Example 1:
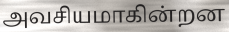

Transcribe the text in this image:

அவசியமாகின்றன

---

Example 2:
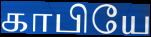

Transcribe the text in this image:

காபியே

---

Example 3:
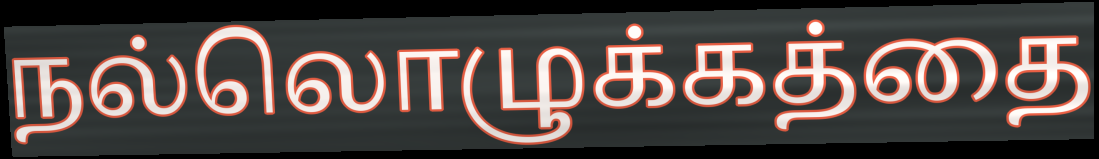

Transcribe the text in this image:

நல்லொழுக்கத்தை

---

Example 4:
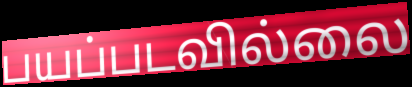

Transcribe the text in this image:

பயப்படவில்லை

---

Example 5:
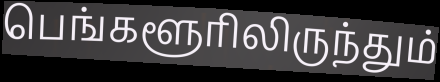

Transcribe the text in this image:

பெங்களூரிலிருந்தும்